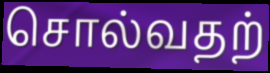
சொல்வதற்